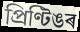
প্ৰিণ্টিঙৰ